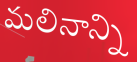
మలినాన్ని